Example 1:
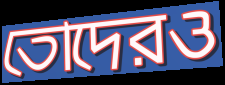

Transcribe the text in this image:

তোদেরও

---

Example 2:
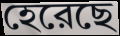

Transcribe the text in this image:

হেরেছে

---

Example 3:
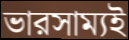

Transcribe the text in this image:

ভারসাম্যই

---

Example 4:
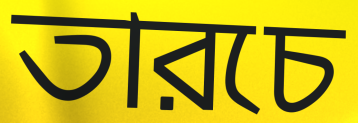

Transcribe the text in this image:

তারচে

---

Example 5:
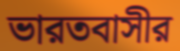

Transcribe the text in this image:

ভারতবাসীর